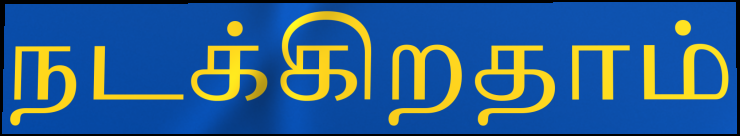
நடக்கிறதாம்